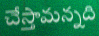
చేస్తామన్నది